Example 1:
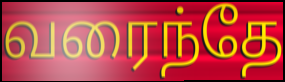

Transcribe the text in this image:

வரைந்தே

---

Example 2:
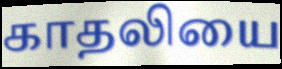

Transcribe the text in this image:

காதலியை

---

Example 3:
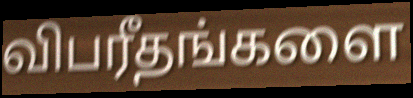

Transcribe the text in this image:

விபரீதங்களை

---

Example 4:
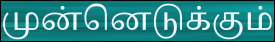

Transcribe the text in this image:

முன்னெடுக்கும்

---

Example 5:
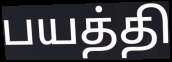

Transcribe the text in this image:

பயத்தி